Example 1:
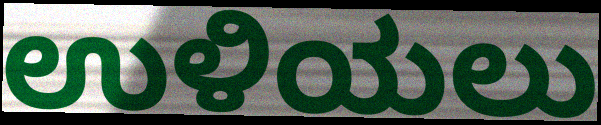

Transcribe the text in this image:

ಉಳಿಯಲು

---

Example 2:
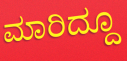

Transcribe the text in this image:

ಮಾರಿದ್ದೂ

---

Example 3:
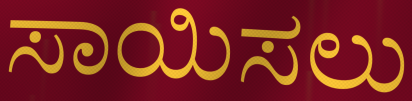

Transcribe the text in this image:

ಸಾಯಿಸಲು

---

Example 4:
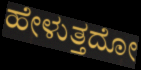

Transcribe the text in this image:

ಹೇಳುತ್ತದೋ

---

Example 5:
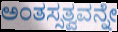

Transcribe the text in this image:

ಅಂತಸ್ಸತ್ವವನ್ನೇ